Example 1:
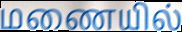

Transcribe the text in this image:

மணையில்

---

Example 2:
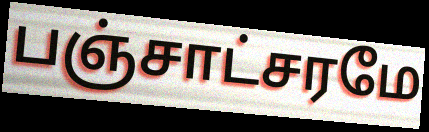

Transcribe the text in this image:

பஞ்சாட்சரமே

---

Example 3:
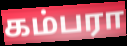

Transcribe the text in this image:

கம்பரா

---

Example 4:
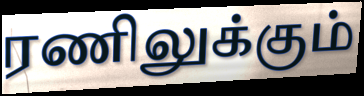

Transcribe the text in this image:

ரணிலுக்கும்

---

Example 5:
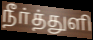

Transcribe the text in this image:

நீர்த்துளி